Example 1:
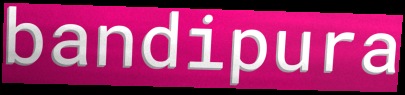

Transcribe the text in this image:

bandipura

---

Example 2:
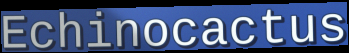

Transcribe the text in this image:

Echinocactus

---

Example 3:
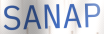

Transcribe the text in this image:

SANAP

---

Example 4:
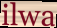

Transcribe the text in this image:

ilwa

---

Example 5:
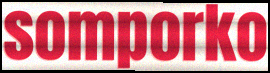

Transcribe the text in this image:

somporko